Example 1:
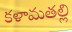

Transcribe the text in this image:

కళామతల్లి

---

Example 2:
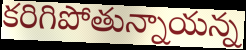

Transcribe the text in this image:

కరిగిపోతున్నాయన్న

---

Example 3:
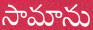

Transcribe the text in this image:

సామాను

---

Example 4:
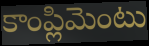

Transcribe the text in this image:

కాంప్లిమెంటు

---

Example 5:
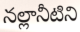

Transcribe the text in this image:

నల్లానీటిని